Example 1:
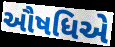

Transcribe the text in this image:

ઔષધિએ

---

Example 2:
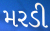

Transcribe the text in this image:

મરડી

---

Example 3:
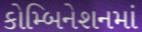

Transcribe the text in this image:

કોમ્બિનેશનમાં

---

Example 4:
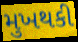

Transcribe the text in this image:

મુખથકી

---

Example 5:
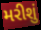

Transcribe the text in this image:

મરીશું